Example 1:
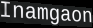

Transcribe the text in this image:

Inamgaon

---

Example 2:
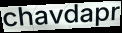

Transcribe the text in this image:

chavdapr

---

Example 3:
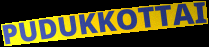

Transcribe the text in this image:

PUDUKKOTTAI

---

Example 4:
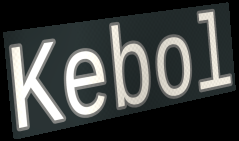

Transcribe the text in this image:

Kebol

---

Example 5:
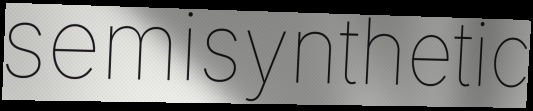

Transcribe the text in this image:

semisynthetic